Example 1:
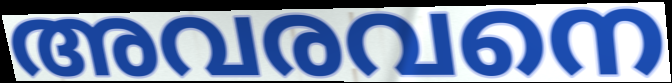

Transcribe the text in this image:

അവരവനെ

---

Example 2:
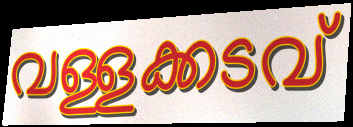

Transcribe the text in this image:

വള്ളക്കടവ്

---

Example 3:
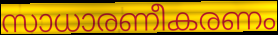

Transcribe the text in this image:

സാധാരണീകരണം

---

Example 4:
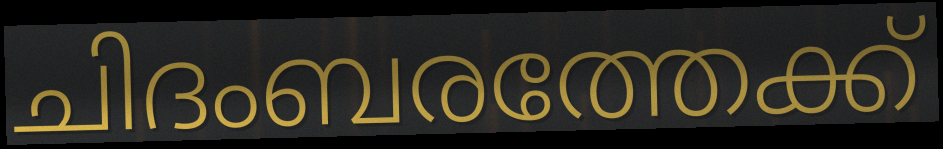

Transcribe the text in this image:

ചിദംബരത്തേക്ക്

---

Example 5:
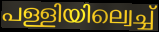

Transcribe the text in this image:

പള്ളിയില്വെച്ച്